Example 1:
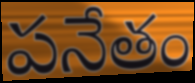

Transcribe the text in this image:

పనేతం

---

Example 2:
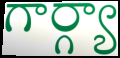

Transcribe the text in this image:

గార్గ్యా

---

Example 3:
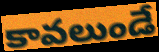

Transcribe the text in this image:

కావలుండే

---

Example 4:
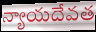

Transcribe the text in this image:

న్యాయదేవత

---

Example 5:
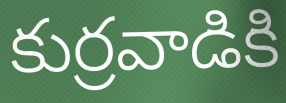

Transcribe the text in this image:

కుర్రవాడికి